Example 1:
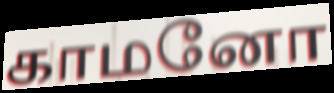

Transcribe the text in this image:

காமனோ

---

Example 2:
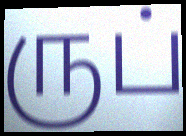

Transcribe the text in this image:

ருப்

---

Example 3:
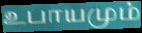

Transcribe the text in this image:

உபாயமும்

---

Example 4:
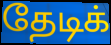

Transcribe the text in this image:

தேடிக்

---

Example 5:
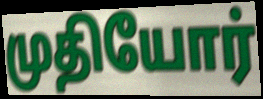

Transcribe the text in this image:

முதியோர்